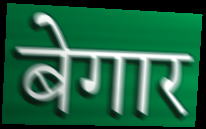
बेगार